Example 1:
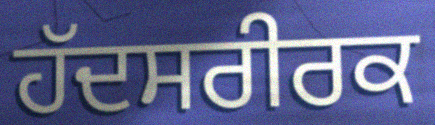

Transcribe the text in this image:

ਹੱਦਸਰੀਰਕ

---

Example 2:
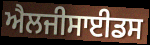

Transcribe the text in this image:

ਐਲਜੀਸਾਈਡਸ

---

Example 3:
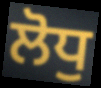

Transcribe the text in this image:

ਲੋਧੁ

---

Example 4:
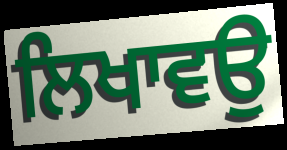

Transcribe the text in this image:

ਲਿਖਾਵਉ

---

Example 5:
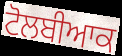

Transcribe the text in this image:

ਟੋਲਬੀਆਕ